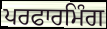
ਪਰਫਾਰਮਿੰਗ